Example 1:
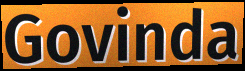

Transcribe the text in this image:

Govinda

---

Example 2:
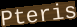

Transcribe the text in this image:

Pteris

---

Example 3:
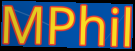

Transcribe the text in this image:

MPhil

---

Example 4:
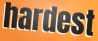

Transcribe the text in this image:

hardest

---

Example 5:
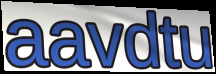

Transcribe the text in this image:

aavdtu